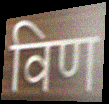
विण